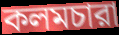
কলমচারা